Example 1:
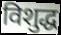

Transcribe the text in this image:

विशुद्ध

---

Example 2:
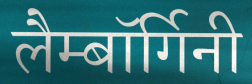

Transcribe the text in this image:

लैम्बॉर्गिनी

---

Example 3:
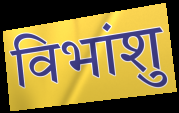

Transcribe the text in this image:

विभांशु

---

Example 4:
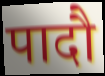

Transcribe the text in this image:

पादौ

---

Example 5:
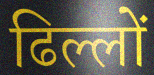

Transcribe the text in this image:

ढिल्लों